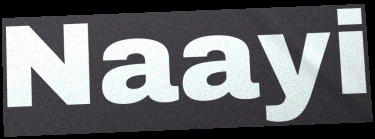
Naayi